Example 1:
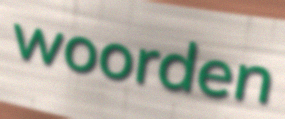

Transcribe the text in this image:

woorden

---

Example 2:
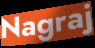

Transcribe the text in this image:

Nagraj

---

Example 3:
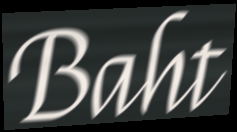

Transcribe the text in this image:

Baht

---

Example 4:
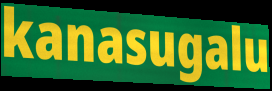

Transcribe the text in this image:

kanasugalu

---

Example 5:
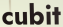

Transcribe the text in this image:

cubit